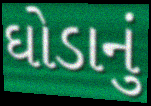
ઘોડાનું